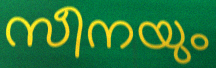
സീനയും